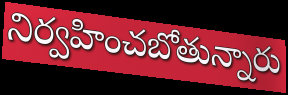
నిర్వహించబోతున్నారు